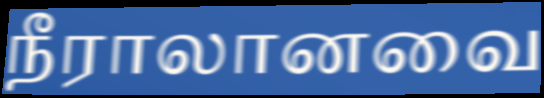
நீராலானவை